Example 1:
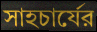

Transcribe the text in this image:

সাহচার্যের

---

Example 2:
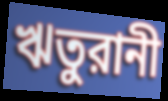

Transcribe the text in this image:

ঋতুরানী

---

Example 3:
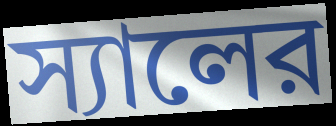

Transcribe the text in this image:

স্যালের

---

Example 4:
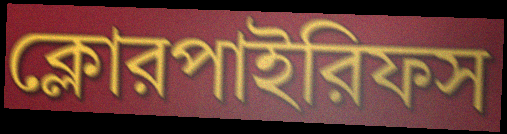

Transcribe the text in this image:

ক্লোরপাইরিফস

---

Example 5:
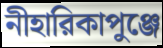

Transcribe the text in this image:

নীহারিকাপুঞ্জে